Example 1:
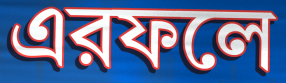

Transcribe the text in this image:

এরফলে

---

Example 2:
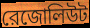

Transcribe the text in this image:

রেজোলিউট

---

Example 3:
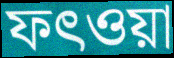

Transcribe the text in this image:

ফৎওয়া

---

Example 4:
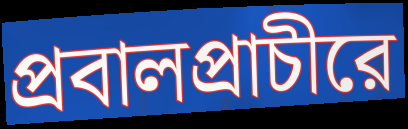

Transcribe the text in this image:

প্রবালপ্রাচীরে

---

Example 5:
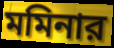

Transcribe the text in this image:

মমিনার